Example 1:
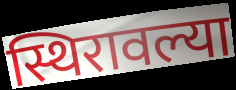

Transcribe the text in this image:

स्थिरावल्या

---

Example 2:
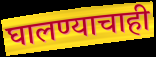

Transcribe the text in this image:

घालण्याचाही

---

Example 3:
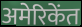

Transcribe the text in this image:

अमेरिकेंत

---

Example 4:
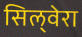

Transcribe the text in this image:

सिल्वेरा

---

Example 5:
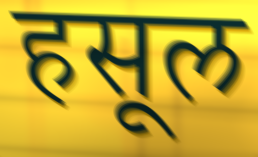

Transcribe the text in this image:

हसूल